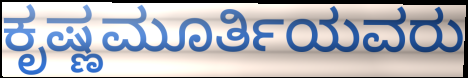
ಕೃಷ್ಣಮೂರ್ತಿಯವರು